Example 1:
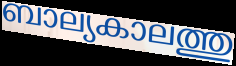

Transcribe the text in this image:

ബാല്യകാലത്തു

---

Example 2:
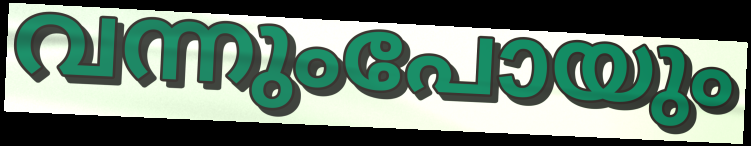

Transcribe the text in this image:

വന്നുംപോയും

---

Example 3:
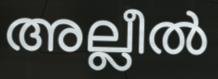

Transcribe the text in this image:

അല്ലീൽ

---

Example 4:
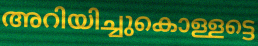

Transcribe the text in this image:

അറിയിച്ചുകൊള്ളട്ടെ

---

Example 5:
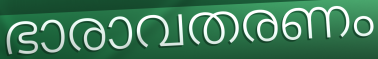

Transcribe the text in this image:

ഭാരാവതരണം